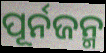
ପୂର୍ନଜନ୍ମ